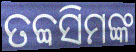
ତବ୍ବସିମଙ୍କ